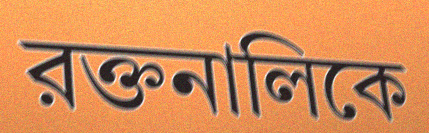
রক্তনালিকে